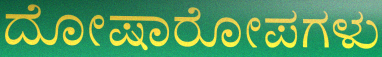
ದೋಷಾರೋಪಗಳು